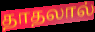
தாதலால்